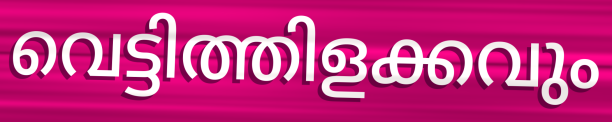
വെട്ടിത്തിളക്കവും